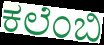
ಕಲೆಂಬಿ